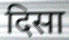
दिसा